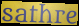
sathre